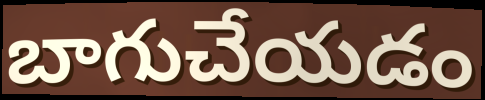
బాగుచేయడం